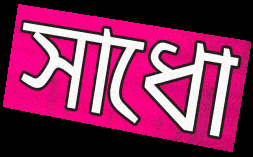
সাধো